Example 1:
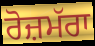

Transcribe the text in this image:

ਰੋਜ਼ਮੱਰਾ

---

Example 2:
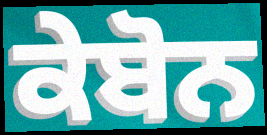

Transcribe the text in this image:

ਕੇਬੋਨ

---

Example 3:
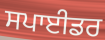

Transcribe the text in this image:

ਸਪਾਈਡਰ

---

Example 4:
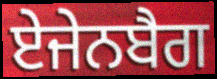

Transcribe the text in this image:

ਏਜੇਨਬੈਗ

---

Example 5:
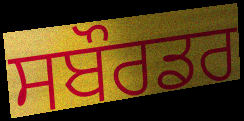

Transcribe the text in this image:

ਸਬੌਰਡਰ